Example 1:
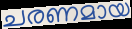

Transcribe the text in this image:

ചരണമായ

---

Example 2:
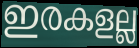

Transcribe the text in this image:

ഇരകളല്ല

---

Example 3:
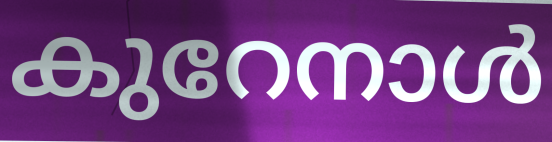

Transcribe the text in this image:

കുറേനാൾ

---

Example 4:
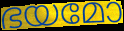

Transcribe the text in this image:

ഭയമോ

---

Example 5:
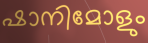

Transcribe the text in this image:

ഷാനിമോളും